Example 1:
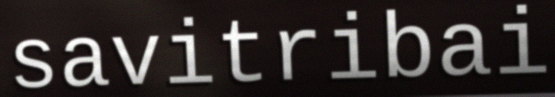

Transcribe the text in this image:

savitribai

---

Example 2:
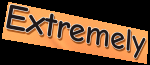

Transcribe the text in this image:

Extremely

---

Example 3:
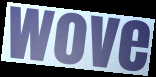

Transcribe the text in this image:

wove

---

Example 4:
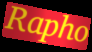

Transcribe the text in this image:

Rapho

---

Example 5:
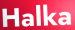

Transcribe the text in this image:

Halka